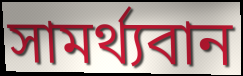
সামর্থ্যবান